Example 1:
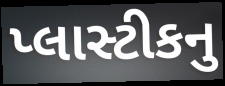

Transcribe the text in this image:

પ્લાસ્ટીકનુ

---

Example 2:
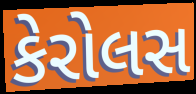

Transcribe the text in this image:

કેરોલસ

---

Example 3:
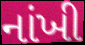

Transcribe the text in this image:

નાંખી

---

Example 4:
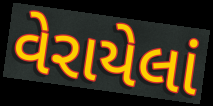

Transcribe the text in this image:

વેરાયેલાં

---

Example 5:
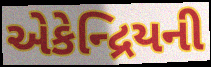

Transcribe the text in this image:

એકેન્દ્રિયની